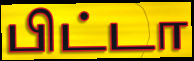
பிட்டா